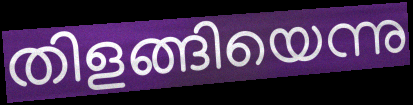
തിളങ്ങിയെന്നു